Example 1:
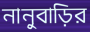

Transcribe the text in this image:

নানুবাড়ির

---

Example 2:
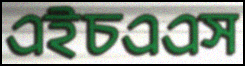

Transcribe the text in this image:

এইচএএস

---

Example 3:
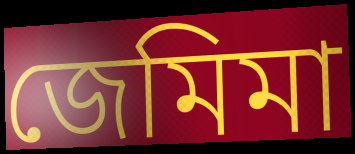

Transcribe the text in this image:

জেমিমা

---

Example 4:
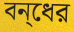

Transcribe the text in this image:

বন্‌ধের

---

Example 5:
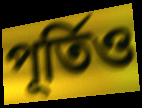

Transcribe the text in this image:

পূর্তিও